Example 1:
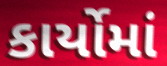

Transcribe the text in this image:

કાર્યોમાં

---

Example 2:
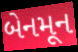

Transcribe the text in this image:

બેનમૂન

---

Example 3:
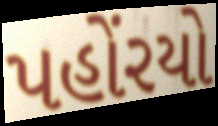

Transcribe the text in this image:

પહોંરયો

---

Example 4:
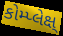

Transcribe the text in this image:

કોમ્પ્લેક્ષ્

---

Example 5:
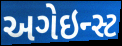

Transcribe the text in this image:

અગેઇન્સ્ટ